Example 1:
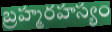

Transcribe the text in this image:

బ్రహ్మరహస్యం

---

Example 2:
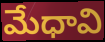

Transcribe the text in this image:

మేధావి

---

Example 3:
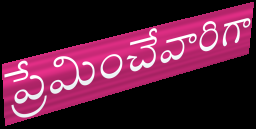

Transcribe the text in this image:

ప్రేమించేవారిగా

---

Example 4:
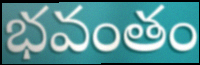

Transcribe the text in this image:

భవంతం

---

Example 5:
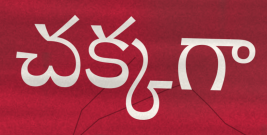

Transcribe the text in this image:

చక్కగా